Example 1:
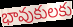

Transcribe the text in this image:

భావుకులకు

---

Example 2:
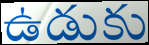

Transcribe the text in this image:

ఉడుకు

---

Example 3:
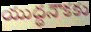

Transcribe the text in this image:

యుద్ధనౌకకు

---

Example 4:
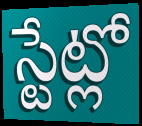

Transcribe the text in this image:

స్టేట్లో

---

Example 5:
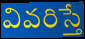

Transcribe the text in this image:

వివరిస్తే